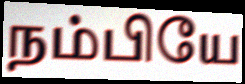
நம்பியே